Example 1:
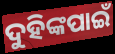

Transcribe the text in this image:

ଦୁହିଙ୍କପାଇଁ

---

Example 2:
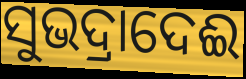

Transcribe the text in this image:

ସୁଭଦ୍ରାଦେଈ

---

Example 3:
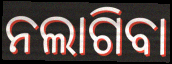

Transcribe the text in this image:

ନଲାଗିବା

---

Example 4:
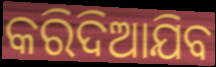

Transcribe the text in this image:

କରିଦିଆଯିବ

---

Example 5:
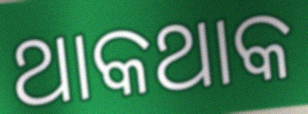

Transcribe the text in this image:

ଥାକଥାକ